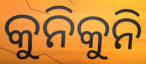
କୁନିକୁନି